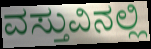
ವಸ್ತುವಿನಲ್ಲಿ